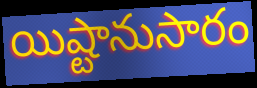
యిష్టానుసారం